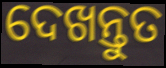
ଦେଖନ୍ତୁତ